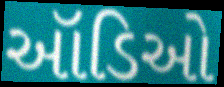
ઑડિઓ